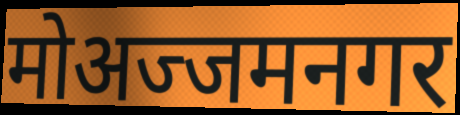
मोअज्जमनगर